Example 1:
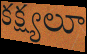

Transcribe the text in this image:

కక్ష్యలూ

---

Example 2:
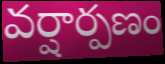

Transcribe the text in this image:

వర్షార్పణం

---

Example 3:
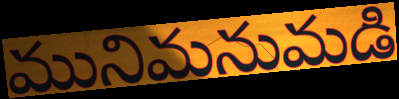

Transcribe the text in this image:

మునిమనుమడి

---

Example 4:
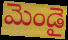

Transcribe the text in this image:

మెండై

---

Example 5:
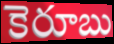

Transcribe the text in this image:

కెరూబు